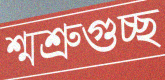
শ্মশ্রুগুচ্ছ